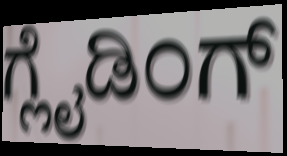
ಗ್ಲೈಡಿಂಗ್